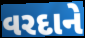
વરદાને